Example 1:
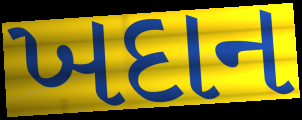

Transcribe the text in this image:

ખદાન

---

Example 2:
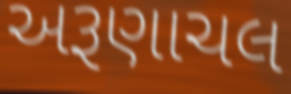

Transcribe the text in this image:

અરૂણાચલ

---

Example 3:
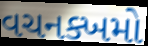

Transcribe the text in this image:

વચનક્ખમો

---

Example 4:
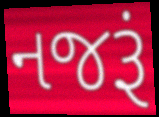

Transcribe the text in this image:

નજરૂં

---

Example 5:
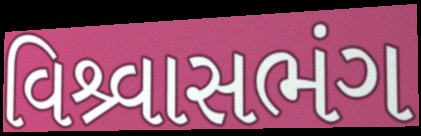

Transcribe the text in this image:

વિશ્ર્વાસભંગ